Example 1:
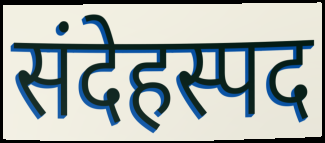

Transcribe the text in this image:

संदेहस्पद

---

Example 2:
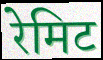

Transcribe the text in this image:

रेमिट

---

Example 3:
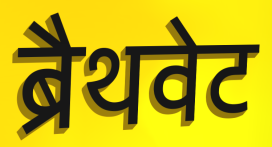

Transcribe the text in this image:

ब्रैथवेट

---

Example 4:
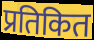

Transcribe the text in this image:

प्रतिकित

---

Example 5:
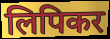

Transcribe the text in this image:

लिपिकर